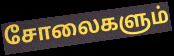
சோலைகளும்